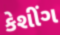
કેશીંગ